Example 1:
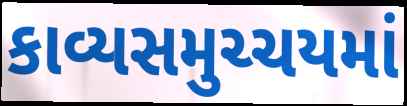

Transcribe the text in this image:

કાવ્યસમુચ્ચયમાં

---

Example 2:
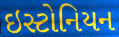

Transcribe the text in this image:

ઇસ્ટોનિયન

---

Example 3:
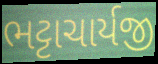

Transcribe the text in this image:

ભટ્ટાચાર્યજી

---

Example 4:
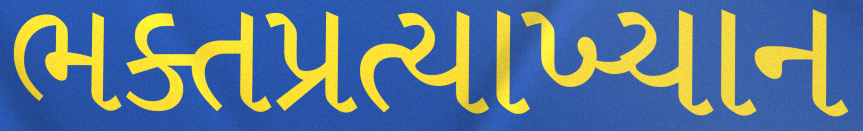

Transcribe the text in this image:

ભક્તપ્રત્યાખ્યાન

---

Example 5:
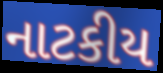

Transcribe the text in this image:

નાટકીય